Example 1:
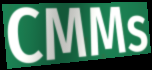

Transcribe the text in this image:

CMMs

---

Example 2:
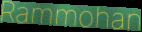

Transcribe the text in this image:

Rammohan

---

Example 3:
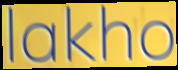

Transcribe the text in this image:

lakho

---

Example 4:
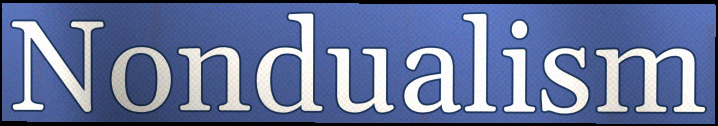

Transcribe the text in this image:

Nondualism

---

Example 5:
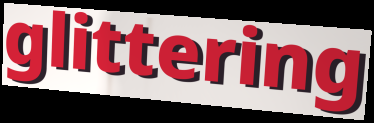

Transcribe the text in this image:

glittering